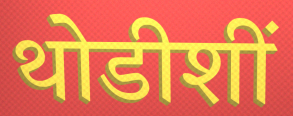
थोडीशीं